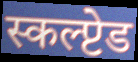
स्कल्प्टेड